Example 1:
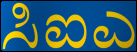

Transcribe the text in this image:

ಸಿಐಎ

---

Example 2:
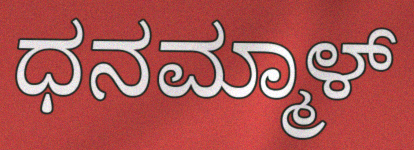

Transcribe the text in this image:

ಧನಮ್ಮಾಳ್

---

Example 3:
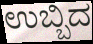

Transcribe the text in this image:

ಉಬ್ಬಿದ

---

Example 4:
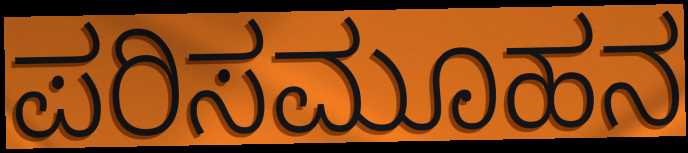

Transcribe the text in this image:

ಪರಿಸಮೂಹನ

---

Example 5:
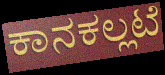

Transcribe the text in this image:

ಕಾನಕಲ್ಲಟೆ